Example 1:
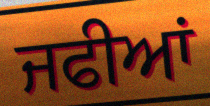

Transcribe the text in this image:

ਜਫੀਆਂ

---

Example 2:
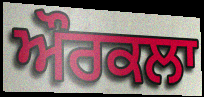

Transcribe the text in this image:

ਔਰਕਲਾ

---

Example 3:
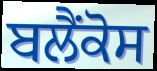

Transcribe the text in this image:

ਬਲੈਂਕੋਸ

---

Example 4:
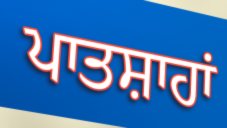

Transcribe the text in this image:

ਪਾਤਸ਼ਾਹਾਂ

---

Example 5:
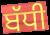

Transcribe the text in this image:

ਬੱਧੀ